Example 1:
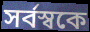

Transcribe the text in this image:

সর্বস্বকে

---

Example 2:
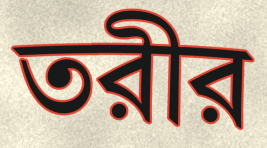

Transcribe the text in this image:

তরীর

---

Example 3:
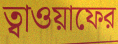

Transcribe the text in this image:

ত্বাওয়াফের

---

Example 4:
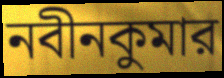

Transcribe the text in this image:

নবীনকুমার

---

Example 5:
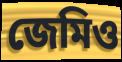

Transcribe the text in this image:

জেমিও